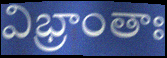
విభ్రాంతాః